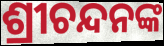
ଶ୍ରୀଚନ୍ଦନଙ୍କ